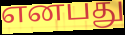
எனபது